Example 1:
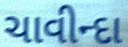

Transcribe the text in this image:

ચાવીન્દા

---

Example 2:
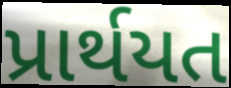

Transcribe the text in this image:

પ્રાર્થયત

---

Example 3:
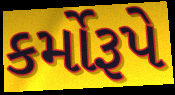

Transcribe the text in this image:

કર્મોરૂપે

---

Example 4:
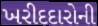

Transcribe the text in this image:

ખરીદદારોની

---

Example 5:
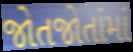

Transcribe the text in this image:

જોતજોતાંમાં